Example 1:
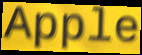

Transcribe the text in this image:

Apple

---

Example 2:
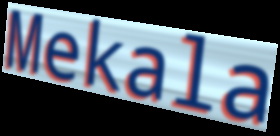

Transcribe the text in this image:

Mekala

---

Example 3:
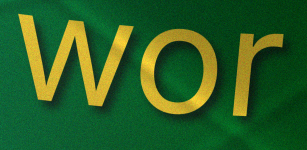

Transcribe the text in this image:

wor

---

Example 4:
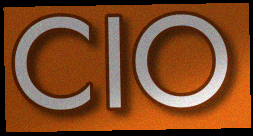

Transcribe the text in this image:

CIO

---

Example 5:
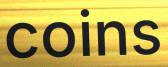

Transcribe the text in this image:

coins